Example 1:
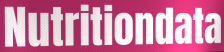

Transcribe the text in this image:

Nutritiondata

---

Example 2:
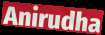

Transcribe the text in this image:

Anirudha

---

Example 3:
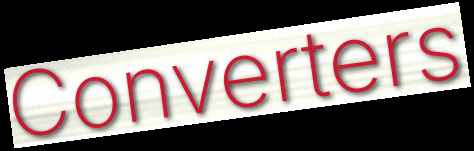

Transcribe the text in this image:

Converters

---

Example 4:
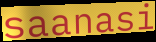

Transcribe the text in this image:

saanasi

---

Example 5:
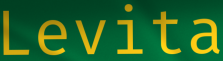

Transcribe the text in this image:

Levita